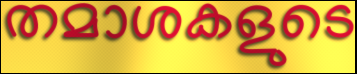
തമാശകളുടെ